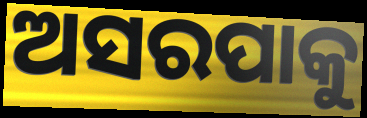
ଅସରପାକୁ